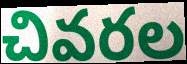
చివరల